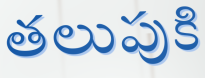
తలుపుకి